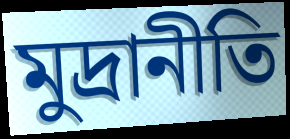
মুদ্রানীতি